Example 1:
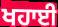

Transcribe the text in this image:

ਖਹਾਈ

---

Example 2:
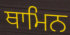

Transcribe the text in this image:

ਥਾਮਿਨ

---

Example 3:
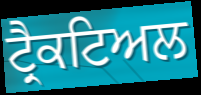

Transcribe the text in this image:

ਟ੍ਰੈਕਟਿਅਲ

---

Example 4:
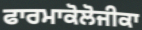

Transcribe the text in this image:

ਫਾਰਮਾਕੋਲੋਜੀਕਾ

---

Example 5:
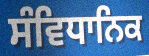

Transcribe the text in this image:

ਸੰਵਿਧਾਨਿਕ